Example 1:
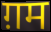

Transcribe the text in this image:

ग़म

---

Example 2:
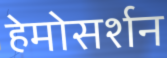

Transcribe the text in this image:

हेमोसर्शन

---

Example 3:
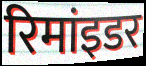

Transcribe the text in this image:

रिमांइडर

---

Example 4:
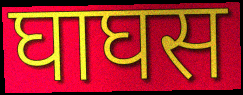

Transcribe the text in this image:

घाघस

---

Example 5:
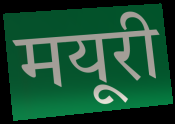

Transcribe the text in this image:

मयूरी